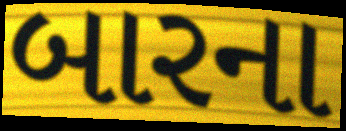
બારના